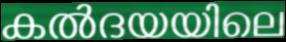
കൽദയയിലെ